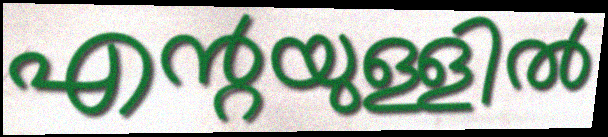
എന്റയുള്ളിൽ